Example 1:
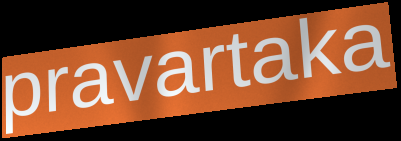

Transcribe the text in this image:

pravartaka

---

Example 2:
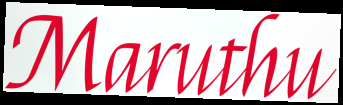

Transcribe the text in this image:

Maruthu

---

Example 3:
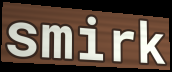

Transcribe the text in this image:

smirk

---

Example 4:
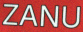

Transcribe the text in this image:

ZANU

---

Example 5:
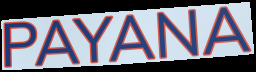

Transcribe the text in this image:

PAYANA